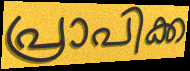
പ്രാപിക്ക